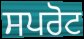
ਸਪਰੋਟ